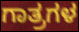
ಗಾತ್ರಗಳ